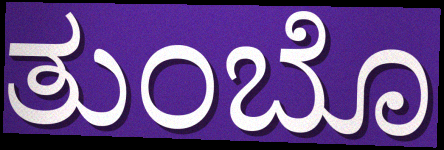
ತುಂಬೊ